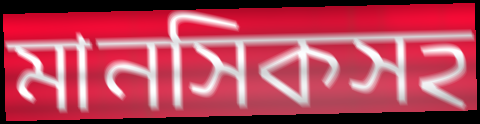
মানসিকসহ